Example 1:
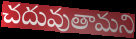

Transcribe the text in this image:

చదువుతామని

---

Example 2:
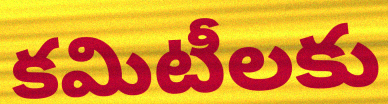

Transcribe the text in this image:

కమిటీలకు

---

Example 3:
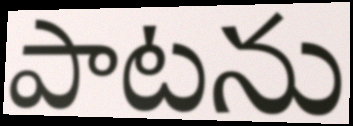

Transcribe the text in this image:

పాటను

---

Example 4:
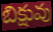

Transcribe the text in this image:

బిక్షువు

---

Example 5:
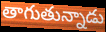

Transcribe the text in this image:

తాగుతున్నాడు